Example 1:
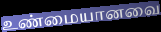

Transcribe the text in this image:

உண்மையானவை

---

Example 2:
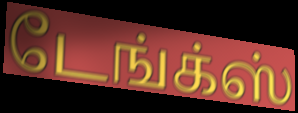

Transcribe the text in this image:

டேங்க்ஸ்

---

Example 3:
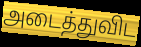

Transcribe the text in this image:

அடைத்துவிட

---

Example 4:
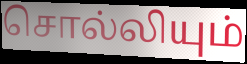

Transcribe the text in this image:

சொல்லியும்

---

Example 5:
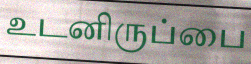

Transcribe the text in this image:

உடனிருப்பை